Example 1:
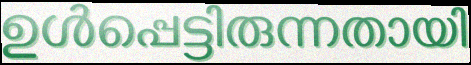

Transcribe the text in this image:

ഉൾപ്പെട്ടിരുന്നതായി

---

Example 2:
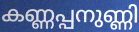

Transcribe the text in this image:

കണ്ണപ്പനുണ്ണി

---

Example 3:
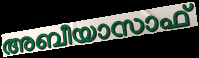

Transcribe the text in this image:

അബീയാസാഫ്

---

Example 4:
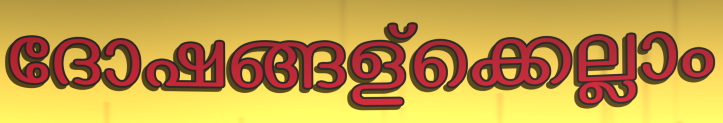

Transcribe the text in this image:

ദോഷങ്ങള്ക്കെല്ലാം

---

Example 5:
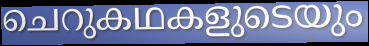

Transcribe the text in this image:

ചെറുകഥകളുടെയും